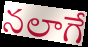
నలాగే